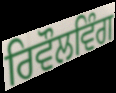
ਰਿਵੌਲਵਿੰਗ